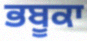
ਭਬੂਕਾ